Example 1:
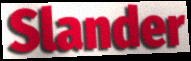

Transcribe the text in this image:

Slander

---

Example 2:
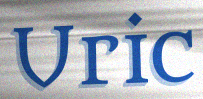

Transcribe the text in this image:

Uric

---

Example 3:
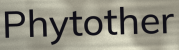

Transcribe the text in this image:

Phytother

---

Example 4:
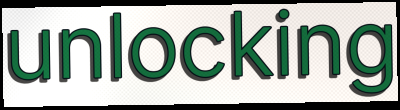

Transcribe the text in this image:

unlocking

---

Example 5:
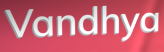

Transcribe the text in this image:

Vandhya